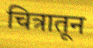
चित्रातून